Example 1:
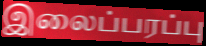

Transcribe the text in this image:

இலைப்பரப்பு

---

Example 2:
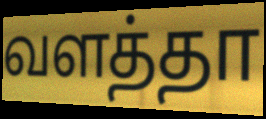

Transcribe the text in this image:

வளத்தா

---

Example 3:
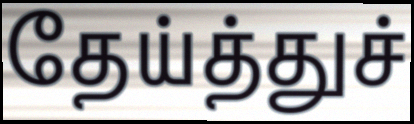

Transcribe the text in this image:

தேய்த்துச்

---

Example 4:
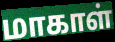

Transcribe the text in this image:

மாகாள்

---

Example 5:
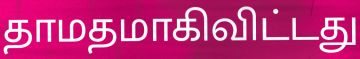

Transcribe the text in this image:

தாமதமாகிவிட்டது